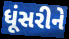
ધૂંસરીને